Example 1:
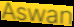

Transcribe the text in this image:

Aswan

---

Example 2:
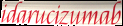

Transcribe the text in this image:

idarucizumab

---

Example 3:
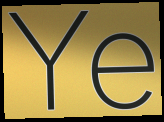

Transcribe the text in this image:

Ye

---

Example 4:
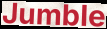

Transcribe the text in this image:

Jumble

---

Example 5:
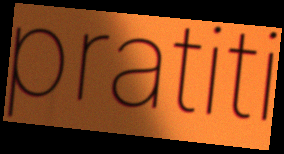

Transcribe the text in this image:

pratiti